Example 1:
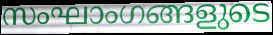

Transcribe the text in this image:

സംഘാംഗങ്ങളുടെ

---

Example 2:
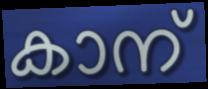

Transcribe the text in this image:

കാന്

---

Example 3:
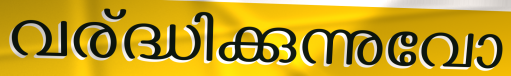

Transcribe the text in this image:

വര്ദ്ധിക്കുന്നുവോ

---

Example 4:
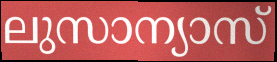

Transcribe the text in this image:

ലുസാന്യാസ്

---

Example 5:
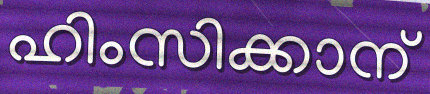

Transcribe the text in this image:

ഹിംസിക്കാന്